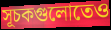
সূচকগুলোতেও